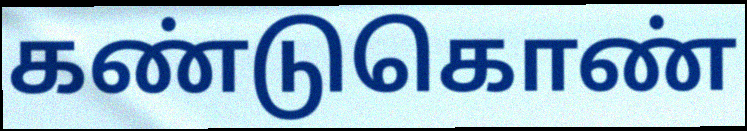
கண்டுகொண்